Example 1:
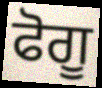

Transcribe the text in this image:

ਫੋਗੂ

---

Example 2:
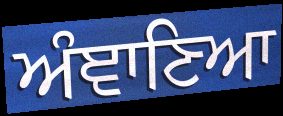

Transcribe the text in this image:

ਅੰਞਾਣਿਆ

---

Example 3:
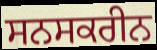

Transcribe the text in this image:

ਸਨਸਕਰੀਨ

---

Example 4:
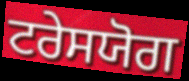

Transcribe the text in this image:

ਟਰੇਸਯੋਗ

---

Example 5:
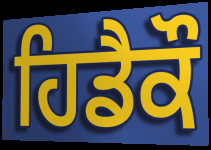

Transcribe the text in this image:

ਹਿਡੈਕੌ